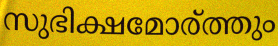
സുഭിക്ഷമോര്ത്തും